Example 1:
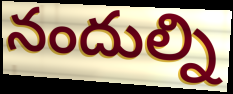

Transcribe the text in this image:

నందుల్ని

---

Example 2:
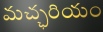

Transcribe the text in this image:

మచ్ఛరియం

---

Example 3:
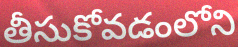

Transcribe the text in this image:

తీసుకోవడంలోని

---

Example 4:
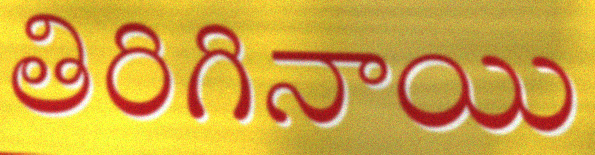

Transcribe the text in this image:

తిరిగినాయి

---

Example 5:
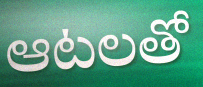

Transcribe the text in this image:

ఆటలతో